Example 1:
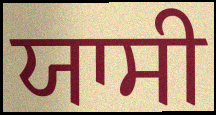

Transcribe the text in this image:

ਯਾਸੀ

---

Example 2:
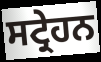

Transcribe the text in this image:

ਸਟ੍ਰੇਹਨ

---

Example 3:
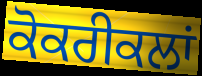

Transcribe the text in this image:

ਕੋਕਰੀਕਲਾਂ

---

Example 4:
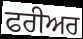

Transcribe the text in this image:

ਫਰੀਅਰ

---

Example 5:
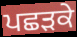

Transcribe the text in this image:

ਪਛੜਕੇ